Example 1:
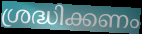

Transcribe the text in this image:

ശ്രദ്ധിക്കണം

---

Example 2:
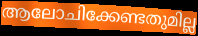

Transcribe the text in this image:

ആലോചിക്കേണ്ടതുമില്ല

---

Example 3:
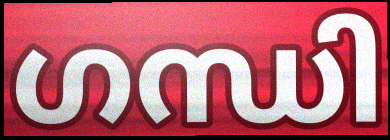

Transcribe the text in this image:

ഗന്ധി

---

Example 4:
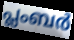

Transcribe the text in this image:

പ്ലംബർ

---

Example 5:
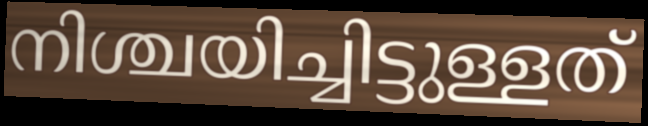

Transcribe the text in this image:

നിശ്ചയിച്ചിട്ടുള്ളത്